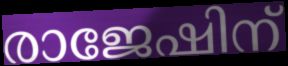
രാജേഷിന്